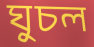
ঘুচল